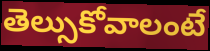
తెల్సుకోవాలంటే